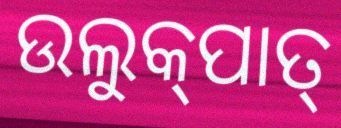
ଉଲୁକ୍‌ପାତ୍